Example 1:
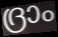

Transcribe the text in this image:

ദ്രാം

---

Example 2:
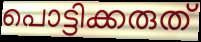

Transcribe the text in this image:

പൊട്ടിക്കരുത്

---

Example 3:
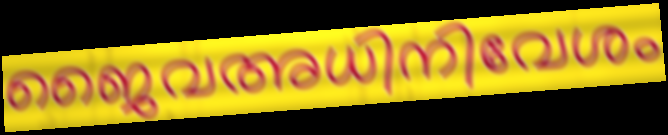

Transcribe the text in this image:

ജൈവഅധിനിവേശം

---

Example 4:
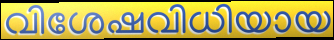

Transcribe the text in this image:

വിശേഷവിധിയായ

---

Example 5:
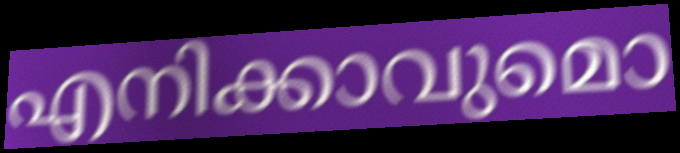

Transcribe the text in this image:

എനിക്കാവുമൊ